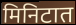
मिनिटात